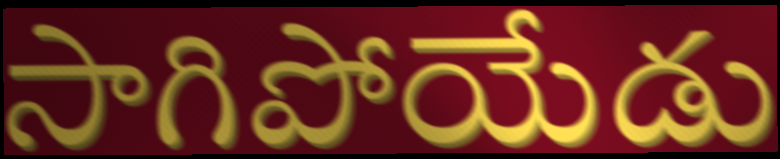
సాగిపోయేడు